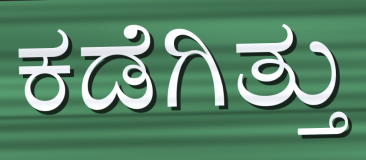
ಕಡೆಗಿತ್ತು